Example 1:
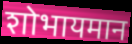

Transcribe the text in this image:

शोभायमान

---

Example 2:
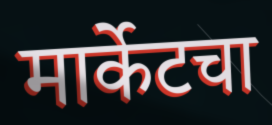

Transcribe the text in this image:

मार्केटचा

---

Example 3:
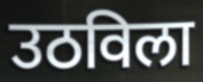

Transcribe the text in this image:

उठविला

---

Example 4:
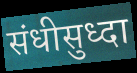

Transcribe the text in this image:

संधीसुध्दा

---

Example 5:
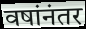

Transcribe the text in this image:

वषांनंतर